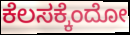
ಕೆಲಸಕ್ಕೆಂದೋ